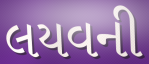
લયવની